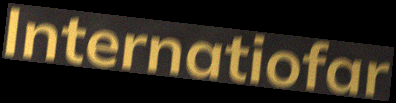
Internatiofar